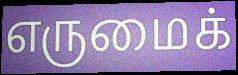
எருமைக்